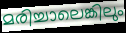
മരിച്ചാലെങ്കിലും